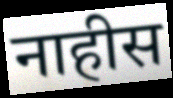
नाहीस